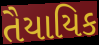
તૈયાયિક